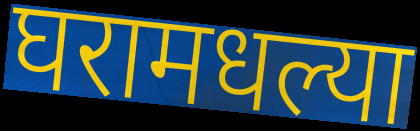
घरामधल्या